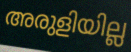
അരുളിയില്ല